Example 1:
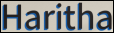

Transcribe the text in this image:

Haritha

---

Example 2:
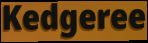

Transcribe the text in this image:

Kedgeree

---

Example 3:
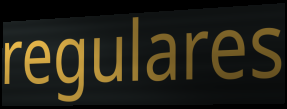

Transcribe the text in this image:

regulares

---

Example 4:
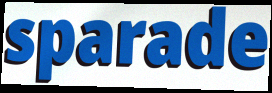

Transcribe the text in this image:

sparade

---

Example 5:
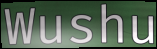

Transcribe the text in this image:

Wushu